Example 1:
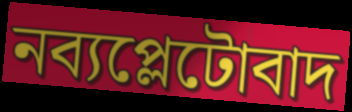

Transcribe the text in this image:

নব্যপ্লেটোবাদ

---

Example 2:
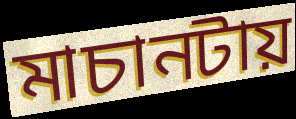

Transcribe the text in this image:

মাচানটায়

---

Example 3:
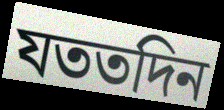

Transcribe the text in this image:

যততদিন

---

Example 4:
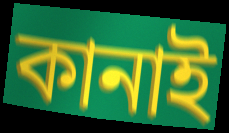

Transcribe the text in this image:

কানাই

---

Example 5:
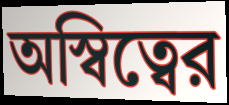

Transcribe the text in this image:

অস্বিত্বের